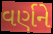
વર્ણને